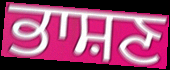
ਭਾਸ਼ਣ